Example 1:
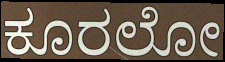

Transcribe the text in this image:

ಕೂರಲೋ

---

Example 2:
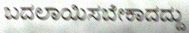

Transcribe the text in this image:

ಬದಲಾಯಿಸಬೇಕಾದದ್ದು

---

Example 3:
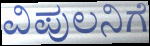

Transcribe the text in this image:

ವಿಪುಲನಿಗೆ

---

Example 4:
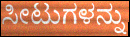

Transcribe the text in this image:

ಸೀಟುಗಳನ್ನು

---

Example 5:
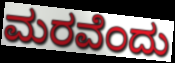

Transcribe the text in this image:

ಮರವೆಂದು